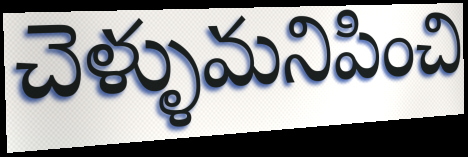
చెళ్ళుమనిపించి